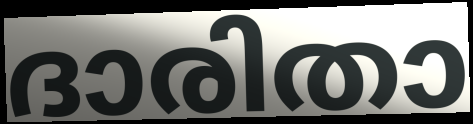
ദാരിതാ